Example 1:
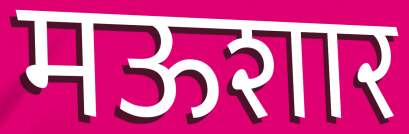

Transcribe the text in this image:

मऊशार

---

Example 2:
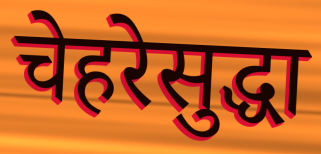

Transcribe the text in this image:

चेहरेसुद्धा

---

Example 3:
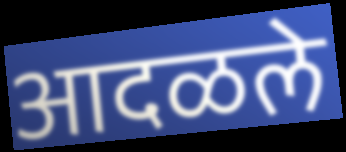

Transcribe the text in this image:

आदळले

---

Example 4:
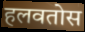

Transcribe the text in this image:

हलवतोस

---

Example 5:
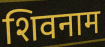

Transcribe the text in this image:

शिवनाम